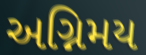
અગ્નિમય